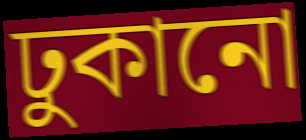
ঢুকানো